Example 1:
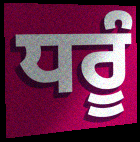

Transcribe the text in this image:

ਧਰੂੰ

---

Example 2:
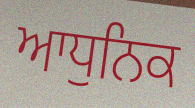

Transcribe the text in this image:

ਆਧੁਨਿਕ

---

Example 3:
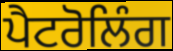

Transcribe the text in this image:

ਪੈਟਰੋਲਿੰਗ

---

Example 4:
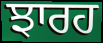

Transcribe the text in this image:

ਝਾਰਹ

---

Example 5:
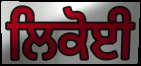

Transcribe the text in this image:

ਲਿਕੋਈ